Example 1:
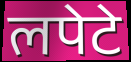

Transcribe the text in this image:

लपेटे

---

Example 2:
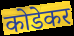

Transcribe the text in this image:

कोडेकर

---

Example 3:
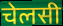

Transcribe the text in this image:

चेलसी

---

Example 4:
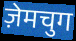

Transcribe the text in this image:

ज़ेमचुग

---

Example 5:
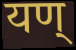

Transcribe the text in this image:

यण्